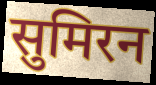
सुमिरन